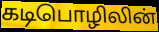
கடிபொழிலின்